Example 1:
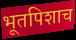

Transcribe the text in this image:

भूतपिशाच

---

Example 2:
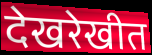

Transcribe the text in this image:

देखरेखीत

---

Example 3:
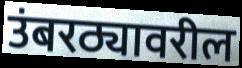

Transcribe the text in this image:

उंबरठ्यावरील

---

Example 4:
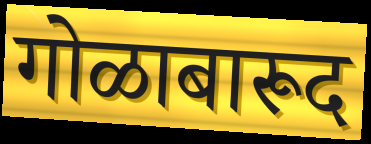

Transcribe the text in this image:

गोळाबारूद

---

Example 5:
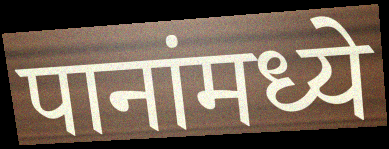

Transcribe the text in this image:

पानांमध्ये